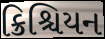
ક્રિશ્ચિયન